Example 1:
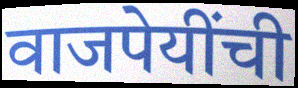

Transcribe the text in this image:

वाजपेयींची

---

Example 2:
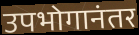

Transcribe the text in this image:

उपभोगानंतर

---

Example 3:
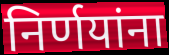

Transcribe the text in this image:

निर्णयांना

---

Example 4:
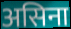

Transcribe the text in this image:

असिना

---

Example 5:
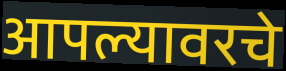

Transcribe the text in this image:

आपल्यावरचे